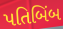
પતિબિંબ